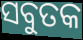
ସବୁତକ